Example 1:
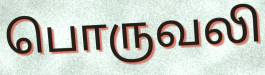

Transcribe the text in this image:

பொருவலி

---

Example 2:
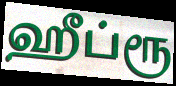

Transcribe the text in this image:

ஹீப்ரூ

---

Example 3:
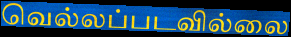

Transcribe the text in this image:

வெல்லப்படவில்லை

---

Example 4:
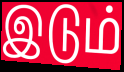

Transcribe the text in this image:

இடும்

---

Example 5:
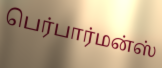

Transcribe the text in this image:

பெர்பார்மன்ஸ்